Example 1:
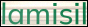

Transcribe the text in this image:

lamisil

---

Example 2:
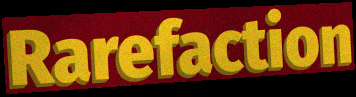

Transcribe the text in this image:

Rarefaction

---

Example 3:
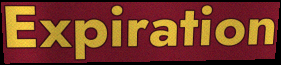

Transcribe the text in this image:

Expiration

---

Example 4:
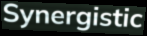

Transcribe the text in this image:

Synergistic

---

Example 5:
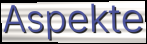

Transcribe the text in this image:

Aspekte